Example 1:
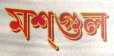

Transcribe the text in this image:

মশ্গুল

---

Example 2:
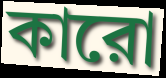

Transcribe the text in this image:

কারো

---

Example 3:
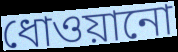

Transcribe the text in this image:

ধোওয়ানো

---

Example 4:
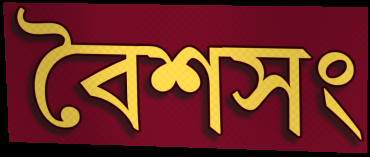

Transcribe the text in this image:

বৈশসং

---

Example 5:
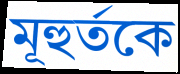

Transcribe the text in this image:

মূহুর্তকে